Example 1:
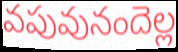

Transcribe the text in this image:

వపువునందెల్ల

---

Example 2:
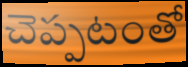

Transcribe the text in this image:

చెప్పటంతో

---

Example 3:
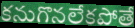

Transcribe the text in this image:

కనుగొనలేకపోతే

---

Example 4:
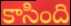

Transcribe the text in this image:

కాసింది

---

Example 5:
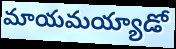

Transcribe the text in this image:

మాయమయ్యాడో